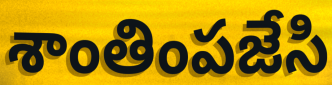
శాంతింపజేసి